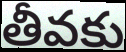
తీవకు